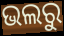
ଭଲରୁ